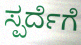
ಸ್ಪರ್ದೆಗೆ